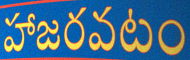
హాజరవటం